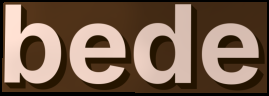
bede